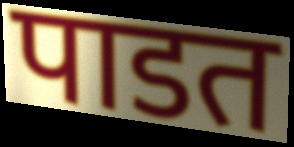
पाडत